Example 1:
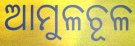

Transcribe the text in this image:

ଆମୁଳଚୂଳ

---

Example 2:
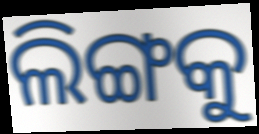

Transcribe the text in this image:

ଲିଙ୍ଗକୁ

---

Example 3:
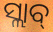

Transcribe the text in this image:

ସ୍ଲାବ୍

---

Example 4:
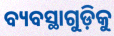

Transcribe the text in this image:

ବ୍ୟବସ୍ଥାଗୁଡ଼ିକୁ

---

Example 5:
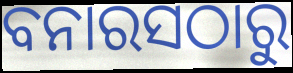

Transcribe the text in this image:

ବନାରସଠାରୁ